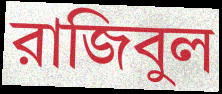
রাজিবুল